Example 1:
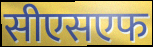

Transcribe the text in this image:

सीएसएफ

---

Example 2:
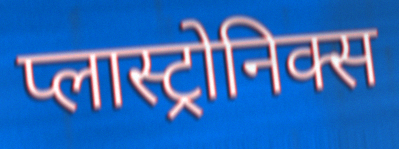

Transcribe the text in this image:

प्लास्ट्रोनिक्स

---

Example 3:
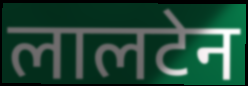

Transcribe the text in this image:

लालटेन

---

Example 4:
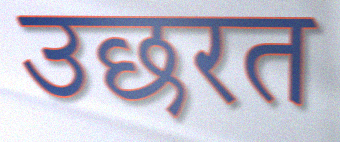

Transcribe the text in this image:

उछरत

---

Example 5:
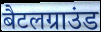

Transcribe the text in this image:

बैटलग्राउंड